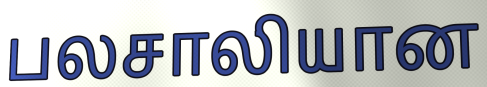
பலசாலியான